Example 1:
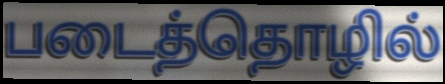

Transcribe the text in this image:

படைத்தொழில்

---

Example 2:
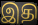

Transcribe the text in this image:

இதி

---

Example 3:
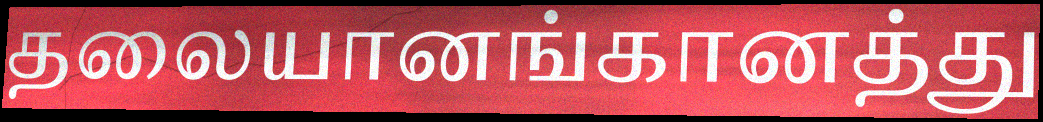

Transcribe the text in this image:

தலையானங்கானத்து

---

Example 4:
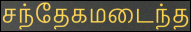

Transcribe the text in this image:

சந்தேகமடைந்த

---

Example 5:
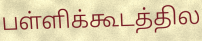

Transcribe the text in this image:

பள்ளிக்கூடத்தில